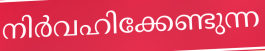
നിർവഹിക്കേണ്ടുന്ന